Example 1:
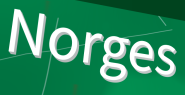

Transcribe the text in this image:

Norges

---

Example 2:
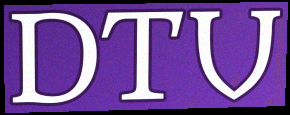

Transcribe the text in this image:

DTU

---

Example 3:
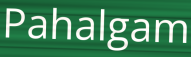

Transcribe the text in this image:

Pahalgam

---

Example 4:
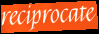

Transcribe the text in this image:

reciprocate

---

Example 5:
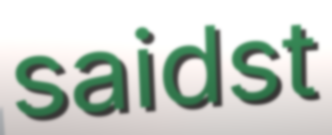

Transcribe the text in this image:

saidst